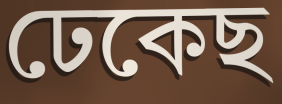
ঢেকেছ